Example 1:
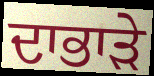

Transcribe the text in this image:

ਦਾਭਾੜੇ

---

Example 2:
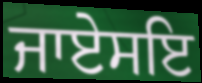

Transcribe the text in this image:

ਜਾਏਸਇ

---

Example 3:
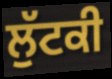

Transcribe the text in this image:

ਲੁੱਟਕੀ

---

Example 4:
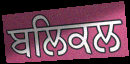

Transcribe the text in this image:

ਬਲਿਕਲ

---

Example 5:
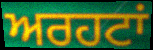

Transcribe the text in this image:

ਅਰਹਟਾਂ